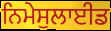
ਨਿਮੇਸੁਲਾਈਡ